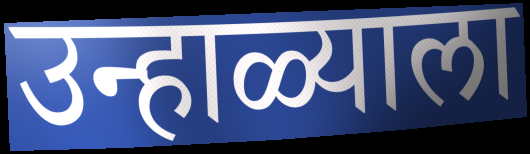
उन्हाळ्याला